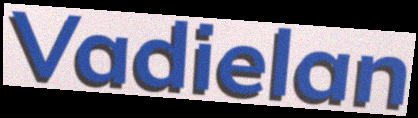
Vadielan